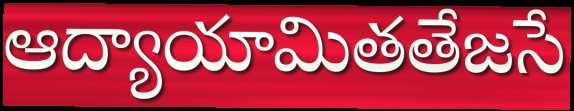
ఆద్యాయామితతేజసే